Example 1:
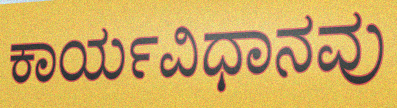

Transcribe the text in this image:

ಕಾರ್ಯವಿಧಾನವು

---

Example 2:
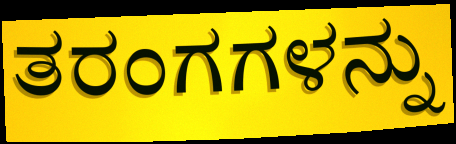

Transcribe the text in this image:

ತರಂಗಗಳನ್ನು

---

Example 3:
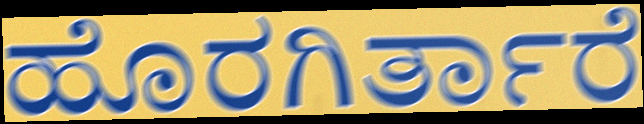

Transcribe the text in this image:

ಹೊರಗಿರ್ತಾರೆ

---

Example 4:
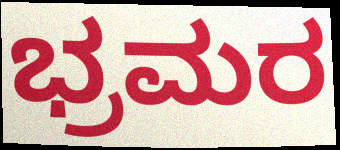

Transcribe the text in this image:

ಭ್ರಮರ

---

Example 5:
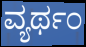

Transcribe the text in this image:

ವ್ಯರ್ಥಂ